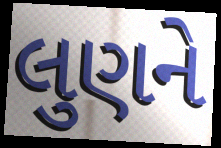
લુણને